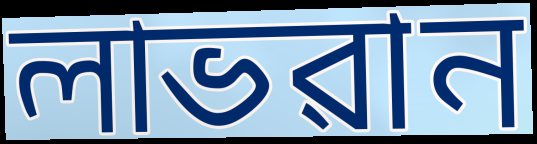
লাভৱান